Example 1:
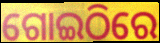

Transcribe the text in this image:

ଗୋଇଠିରେ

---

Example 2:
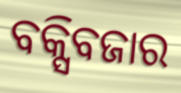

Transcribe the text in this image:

ବକ୍ସିବଜାର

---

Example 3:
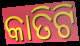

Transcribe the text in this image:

କାତିଟି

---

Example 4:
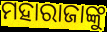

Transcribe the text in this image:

ମହାରାଜାଙ୍କୁ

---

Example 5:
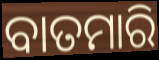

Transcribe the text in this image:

ବାତମାରି